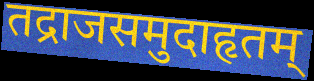
तद्राजसमुदाहृतम्